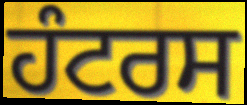
ਹੰਟਰਸ